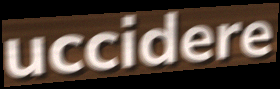
uccidere